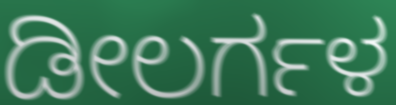
ಡೀಲರ್ಗಳ